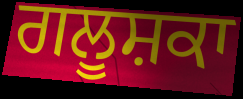
ਗਲੂਸ਼ਕਾ